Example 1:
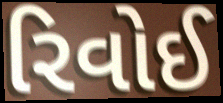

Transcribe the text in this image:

રિવોઈ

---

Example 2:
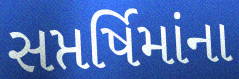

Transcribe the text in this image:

સપ્તર્ષિમાંના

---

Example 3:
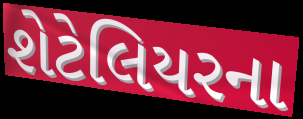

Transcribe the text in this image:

શેટેલિયરના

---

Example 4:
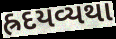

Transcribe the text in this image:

હ્રદયવ્યથા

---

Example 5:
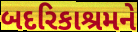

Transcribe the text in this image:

બદરિકાશ્રમને